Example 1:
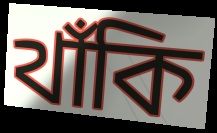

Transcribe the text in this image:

থাঁকি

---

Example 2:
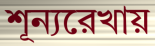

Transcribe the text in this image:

শূন্যরেখায়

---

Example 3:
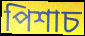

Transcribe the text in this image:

পিশাচ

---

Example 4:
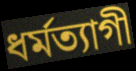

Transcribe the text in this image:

ধর্মত্যাগী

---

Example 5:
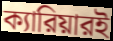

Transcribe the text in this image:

ক্যারিয়ারই